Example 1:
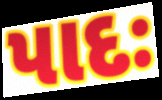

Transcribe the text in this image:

પાદઃ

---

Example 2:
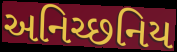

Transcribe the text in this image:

અનિચ્છનિય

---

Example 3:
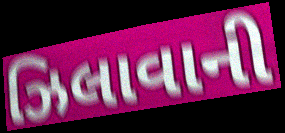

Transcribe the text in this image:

ઝિલાવાની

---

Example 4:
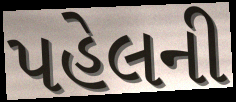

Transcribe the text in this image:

પહેલની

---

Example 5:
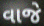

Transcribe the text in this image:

વાજે